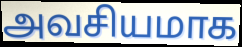
அவசியமாக